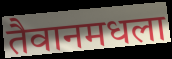
तैवानमधला